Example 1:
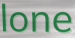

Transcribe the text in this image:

lone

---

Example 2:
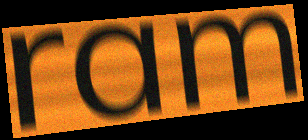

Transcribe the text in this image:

ram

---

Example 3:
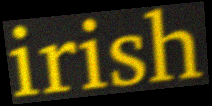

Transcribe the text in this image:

irish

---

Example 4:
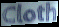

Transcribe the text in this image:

Cloth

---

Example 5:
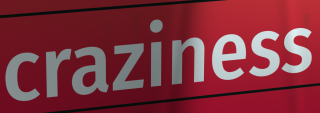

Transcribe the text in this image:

craziness